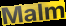
Malm